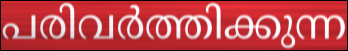
പരിവർത്തിക്കുന്ന